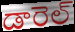
డారెల్